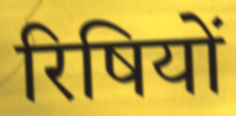
रिषियों